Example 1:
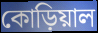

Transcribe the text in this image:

কোড়িয়াল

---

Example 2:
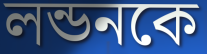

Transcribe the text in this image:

লন্ডনকে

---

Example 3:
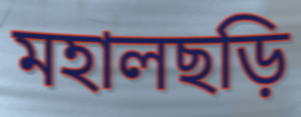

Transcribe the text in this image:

মহালছড়ি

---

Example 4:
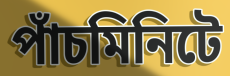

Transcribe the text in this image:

পাঁচমিনিটে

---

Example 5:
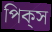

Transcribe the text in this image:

পিক্‌স